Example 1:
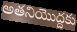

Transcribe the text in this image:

అతనియొద్దకు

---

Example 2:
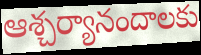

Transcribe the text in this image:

ఆశ్చర్యానందాలకు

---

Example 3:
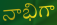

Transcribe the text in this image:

నాభిగా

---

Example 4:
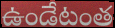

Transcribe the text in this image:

ఉండేటంత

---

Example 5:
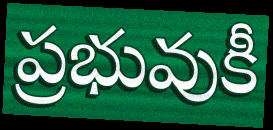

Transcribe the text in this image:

ప్రభువుకీ